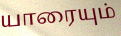
யாரையும்